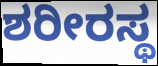
ಶರೀರಸ್ಥ